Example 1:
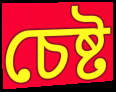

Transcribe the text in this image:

চেষ্ট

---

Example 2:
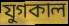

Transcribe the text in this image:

যুগকাল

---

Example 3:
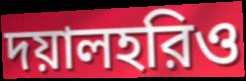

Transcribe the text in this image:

দয়ালহরিও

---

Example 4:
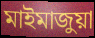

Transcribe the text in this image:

মাইমাজুয়া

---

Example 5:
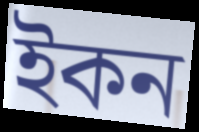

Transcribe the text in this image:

ইকন